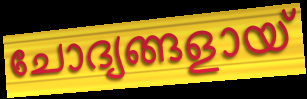
ചോദ്യങ്ങളായ്